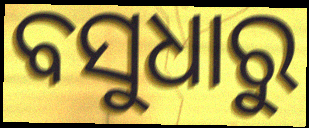
ବସୁଧାରୁ